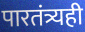
पारतंत्र्यही